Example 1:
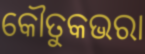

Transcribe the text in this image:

କୌତୁକଭରା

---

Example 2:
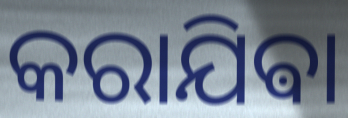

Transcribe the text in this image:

କରାଯିଵା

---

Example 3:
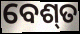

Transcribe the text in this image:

ବେଶ୍‍ତ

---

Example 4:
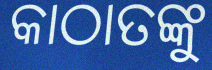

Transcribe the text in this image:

କାଠାତଙ୍କୁ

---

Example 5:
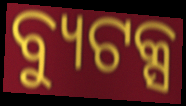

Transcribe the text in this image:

ବ୍ୟୁଟକ୍ସ